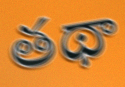
తథా